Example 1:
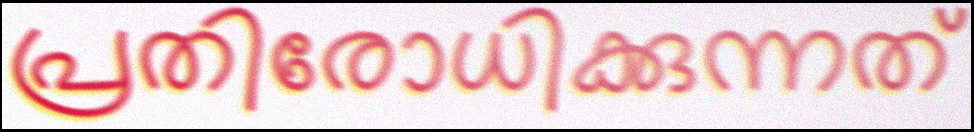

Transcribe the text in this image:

പ്രതിരോധിക്കുന്നത്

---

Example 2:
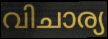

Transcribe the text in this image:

വിചാര്യ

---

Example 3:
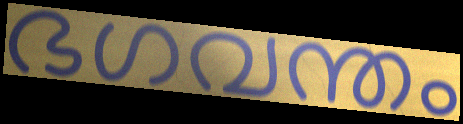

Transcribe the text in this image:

ഭഗവന്തം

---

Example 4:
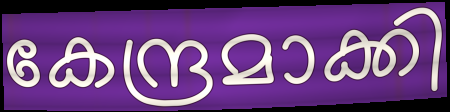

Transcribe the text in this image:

കേന്ദ്രമാക്കി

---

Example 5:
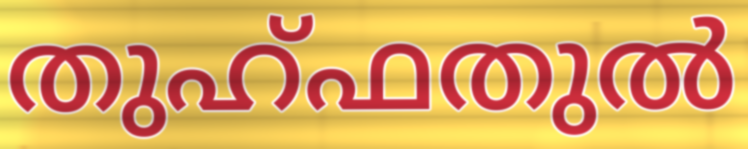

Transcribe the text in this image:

തുഹ്ഫതുൽ